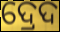
ଦ୍ରେଦ